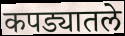
कपड्यातले